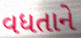
વધતાને